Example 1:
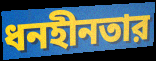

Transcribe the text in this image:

ধনহীনতার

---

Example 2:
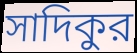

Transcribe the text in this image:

সাদিকুর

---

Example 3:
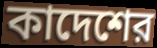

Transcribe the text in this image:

কাদেশের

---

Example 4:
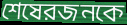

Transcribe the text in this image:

শেষেরজনকে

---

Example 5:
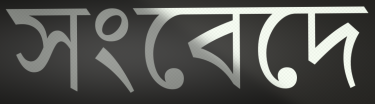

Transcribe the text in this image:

সংবেদে